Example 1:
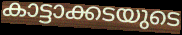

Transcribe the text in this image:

കാട്ടാക്കടയുടെ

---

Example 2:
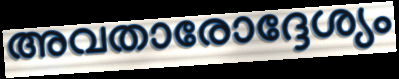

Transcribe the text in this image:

അവതാരോദ്ദേശ്യം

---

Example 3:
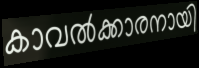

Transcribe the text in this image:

കാവൽക്കാരനായി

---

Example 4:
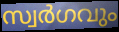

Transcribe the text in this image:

സ്വർഗവും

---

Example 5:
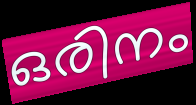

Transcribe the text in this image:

ഒരിനം